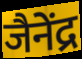
जैनेंद्र